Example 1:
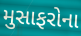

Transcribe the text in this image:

મુસાફરોના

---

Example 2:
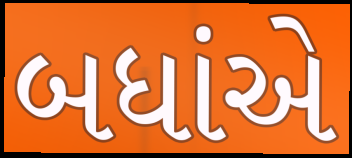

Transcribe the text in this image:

બધાંએ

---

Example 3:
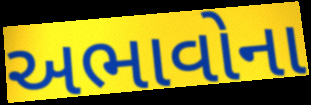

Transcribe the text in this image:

અભાવોના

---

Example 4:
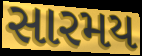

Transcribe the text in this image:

સારમય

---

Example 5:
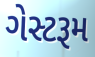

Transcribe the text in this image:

ગેસ્ટરૂમ